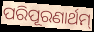
ପରିପୂରଣାର୍ଥମ୍